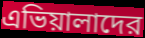
এভিয়ালাদের